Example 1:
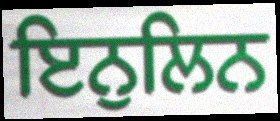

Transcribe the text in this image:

ਇਨੁਲਿਨ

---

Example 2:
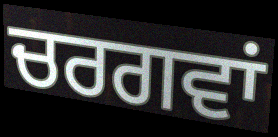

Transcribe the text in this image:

ਚਰਗਵਾਂ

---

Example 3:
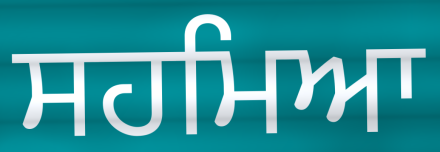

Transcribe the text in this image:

ਸਹਮਿਆ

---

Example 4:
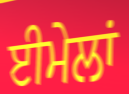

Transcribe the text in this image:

ਈਮੇਲਾਂ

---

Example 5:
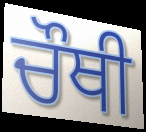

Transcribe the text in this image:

ਚੌਥੀ